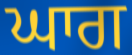
ਘਾਗ